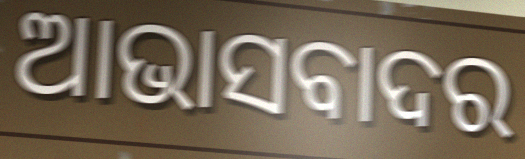
ଆଭାସବାଦର